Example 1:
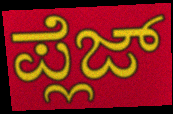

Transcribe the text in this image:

ಪ್ಲೆಜ್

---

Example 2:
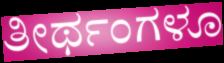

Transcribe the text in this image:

ತೀರ್ಥಂಗಳೂ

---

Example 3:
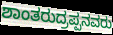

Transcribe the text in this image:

ಶಾಂತರುದ್ರಪ್ಪನವರು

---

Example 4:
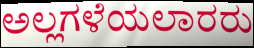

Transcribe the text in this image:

ಅಲ್ಲಗಳೆಯಲಾರರು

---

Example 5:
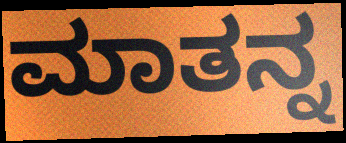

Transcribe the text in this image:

ಮಾತನ್ನ